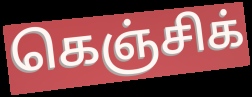
கெஞ்சிக்